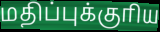
மதிப்புக்குரிய